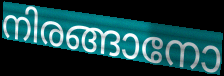
നിരങ്ങാനോ